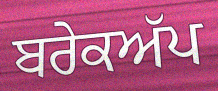
ਬਰੇਕਅੱਪ